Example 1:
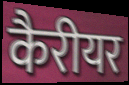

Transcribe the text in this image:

कैरीयर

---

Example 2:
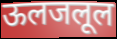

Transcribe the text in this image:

ऊलजलूल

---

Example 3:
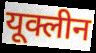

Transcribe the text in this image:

यूक्लीन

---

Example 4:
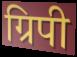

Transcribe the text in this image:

ग्रिपी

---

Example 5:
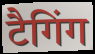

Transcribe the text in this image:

टैगिंग